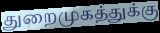
துறைமுகத்துக்கு